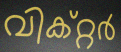
വിക്റ്റർ